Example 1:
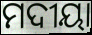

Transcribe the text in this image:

ମଦୀୟା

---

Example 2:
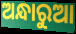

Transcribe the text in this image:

ଅନ୍ଧାରୁଆ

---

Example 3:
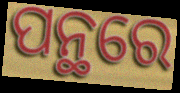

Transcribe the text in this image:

ପନ୍ଥରେ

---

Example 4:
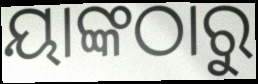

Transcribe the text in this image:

ୟାଙ୍କଠାରୁ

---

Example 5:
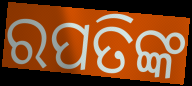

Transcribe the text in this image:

ରପତିଙ୍କ